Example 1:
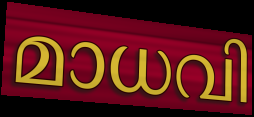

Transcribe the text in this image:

മാധവി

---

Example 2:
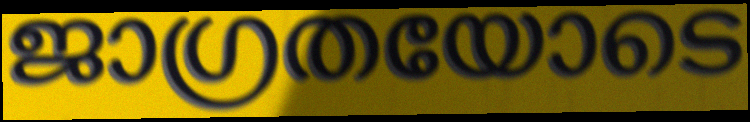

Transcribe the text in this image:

ജാഗ്രതയോടെ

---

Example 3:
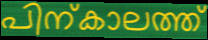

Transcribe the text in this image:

പിന്കാലത്ത്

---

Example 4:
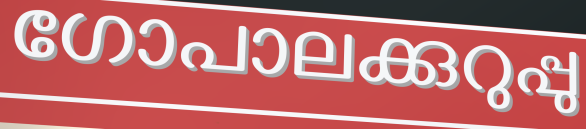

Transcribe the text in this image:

ഗോപാലക്കുറുപ്പു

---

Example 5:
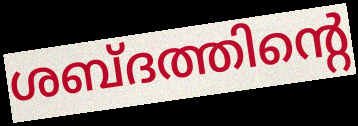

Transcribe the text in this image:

ശബ്ദത്തിന്റെ